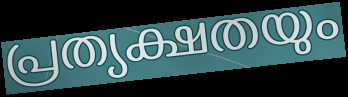
പ്രത്യക്ഷതയും